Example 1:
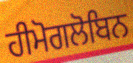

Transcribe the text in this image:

ਹੀਮੋਗਲੋਬਿਨ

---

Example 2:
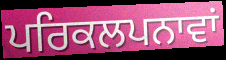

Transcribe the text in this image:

ਪਰਿਕਲਪਨਾਵਾਂ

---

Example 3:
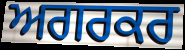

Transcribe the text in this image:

ਅਗਰਕਰ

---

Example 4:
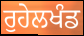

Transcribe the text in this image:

ਰੁਹੇਲਖੰਡ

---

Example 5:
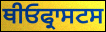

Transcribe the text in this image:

ਥੀਓਫ੍ਰਾਸਟਸ